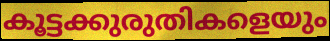
കൂട്ടക്കുരുതികളെയും